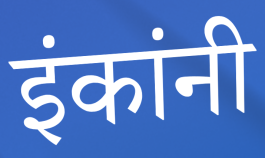
इंकांनी